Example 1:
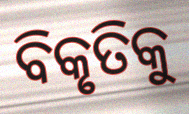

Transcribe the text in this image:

ବିକୃତିକୁ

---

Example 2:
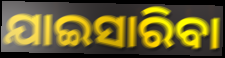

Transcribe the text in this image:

ଯାଇସାରିବା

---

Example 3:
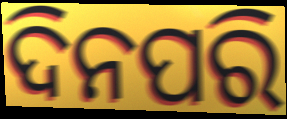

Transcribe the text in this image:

ଦିନପରି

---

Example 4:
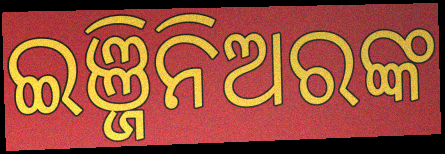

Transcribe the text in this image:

ଇଞ୍ଜିନିଅରଙ୍କ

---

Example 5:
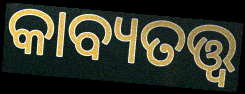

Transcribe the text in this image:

କାବ୍ୟତତ୍ତ୍ୱ